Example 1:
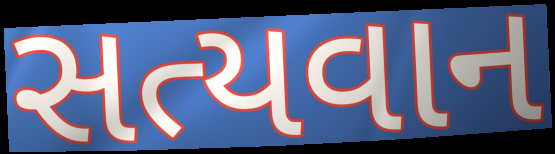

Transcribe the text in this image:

સત્યવાન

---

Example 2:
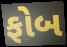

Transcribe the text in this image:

ફોબ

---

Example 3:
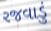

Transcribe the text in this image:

રજવાડું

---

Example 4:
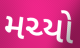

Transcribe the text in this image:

મચ્યો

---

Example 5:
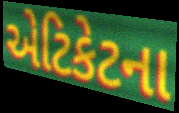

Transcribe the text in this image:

એટિકેટના